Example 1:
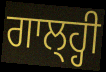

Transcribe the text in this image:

ਗਾਲ੍ਹ੍ਹੀ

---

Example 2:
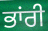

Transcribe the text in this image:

ਭਾਂਰੀ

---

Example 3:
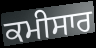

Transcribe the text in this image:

ਕਮੀਸਾਰ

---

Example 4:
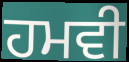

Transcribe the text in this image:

ਹਮਵੀ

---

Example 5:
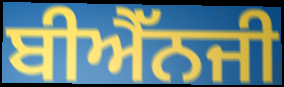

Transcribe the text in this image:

ਬੀਐੱਨਜੀ